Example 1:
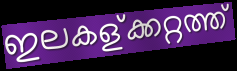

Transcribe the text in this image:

ഇലകള്ക്കറ്റത്ത്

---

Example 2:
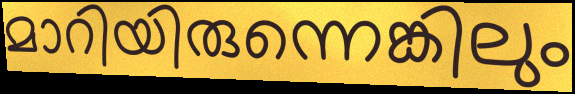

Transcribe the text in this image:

മാറിയിരുന്നെങ്കിലും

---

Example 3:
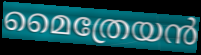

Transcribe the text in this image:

മൈത്രേയൻ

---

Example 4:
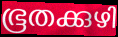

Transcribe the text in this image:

ഭൂതക്കുഴി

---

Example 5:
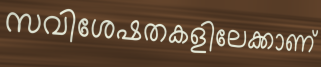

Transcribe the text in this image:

സവിശേഷതകളിലേക്കാണ്